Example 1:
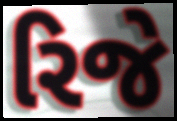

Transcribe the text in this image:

રિજે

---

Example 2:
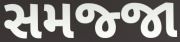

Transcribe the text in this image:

સમજ્જા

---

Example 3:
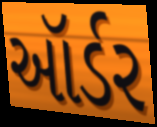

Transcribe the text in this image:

ઑર્ડર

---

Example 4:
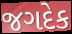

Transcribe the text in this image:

જગદેક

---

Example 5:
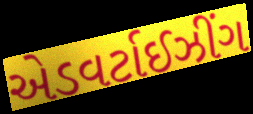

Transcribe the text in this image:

એડવર્ટાઈઝીંગ